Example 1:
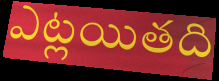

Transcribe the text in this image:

ఎట్లయితది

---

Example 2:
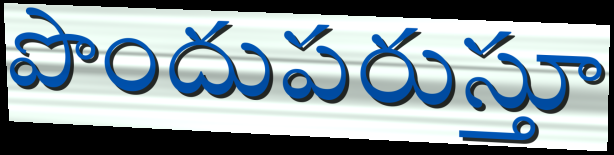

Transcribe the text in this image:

పొందుపరుస్తూ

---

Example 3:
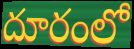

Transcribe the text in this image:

దూరంలో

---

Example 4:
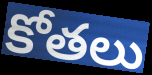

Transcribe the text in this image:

కోతలు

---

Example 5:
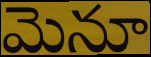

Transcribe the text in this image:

మెనూ